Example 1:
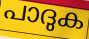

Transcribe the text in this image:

പാദുക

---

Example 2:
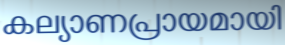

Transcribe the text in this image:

കല്യാണപ്രായമായി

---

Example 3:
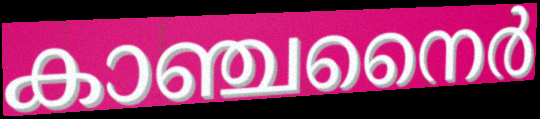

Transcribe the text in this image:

കാഞ്ചനൈർ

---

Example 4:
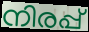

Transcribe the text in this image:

നിരപ്പ്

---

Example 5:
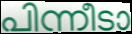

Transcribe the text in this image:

പിന്നീടാ